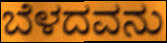
ಬೆಳದವನು